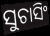
ସୁଚାସିଂ